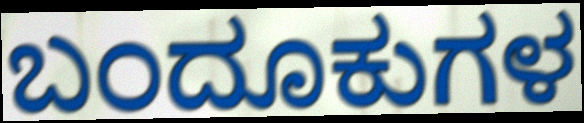
ಬಂದೂಕುಗಳ